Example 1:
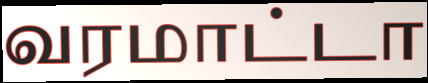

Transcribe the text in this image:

வரமாட்டா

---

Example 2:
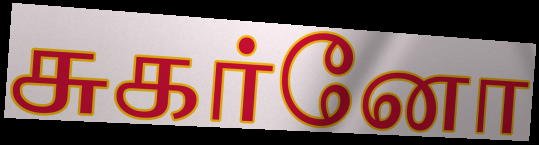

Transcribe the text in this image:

சுகர்னோ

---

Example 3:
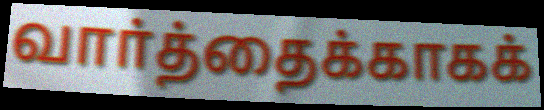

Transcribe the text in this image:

வார்த்தைக்காகக்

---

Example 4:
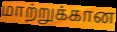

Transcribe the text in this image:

மாற்றுக்கான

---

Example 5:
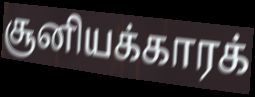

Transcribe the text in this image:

சூனியக்காரக்